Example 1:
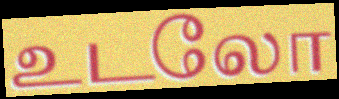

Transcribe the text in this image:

உடலோ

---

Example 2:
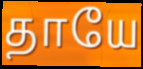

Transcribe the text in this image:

தாயே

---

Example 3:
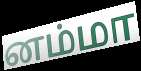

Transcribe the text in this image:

னம்மா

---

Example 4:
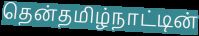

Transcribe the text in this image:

தென்தமிழ்நாட்டின்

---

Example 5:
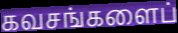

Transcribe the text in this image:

கவசங்களைப்